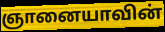
ஞானையாவின்